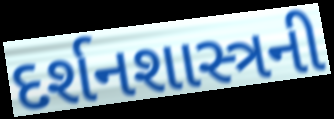
દર્શનશાસ્ત્રની